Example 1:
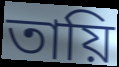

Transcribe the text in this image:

তায়ি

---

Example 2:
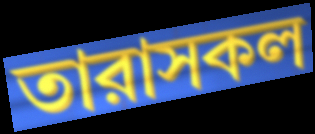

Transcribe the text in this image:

তারাসকল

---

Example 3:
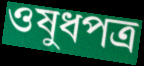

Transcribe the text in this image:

ওষুধপত্র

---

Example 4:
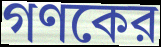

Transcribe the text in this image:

গণকের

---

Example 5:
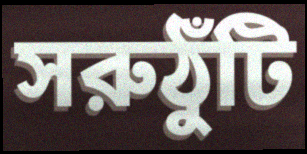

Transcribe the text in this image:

সরুঠুঁটি